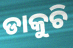
ଡାକୁଚି